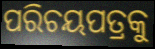
ପରିଚୟପତ୍ରକୁ